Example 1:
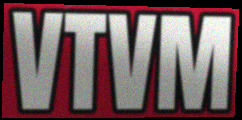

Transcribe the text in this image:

VTVM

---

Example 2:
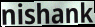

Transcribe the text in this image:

nishank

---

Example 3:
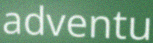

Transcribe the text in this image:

adventu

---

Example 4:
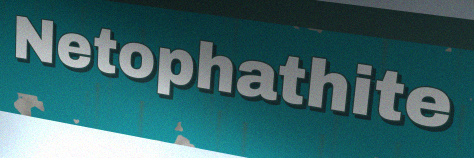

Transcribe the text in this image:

Netophathite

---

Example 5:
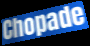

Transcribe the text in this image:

Chopade